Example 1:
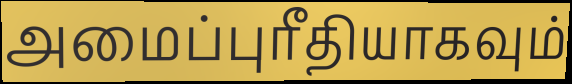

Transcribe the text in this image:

அமைப்புரீதியாகவும்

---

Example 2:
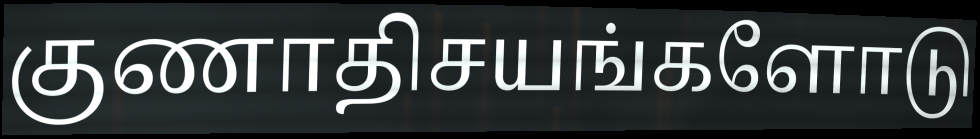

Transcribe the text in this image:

குணாதிசயங்களோடு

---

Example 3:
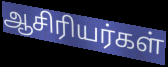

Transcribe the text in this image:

ஆசிரியர்கள்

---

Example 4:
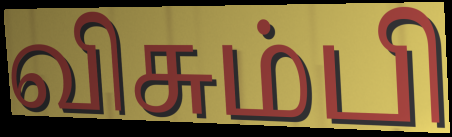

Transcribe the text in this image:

விசும்பி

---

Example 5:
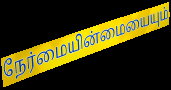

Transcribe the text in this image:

நேர்மையின்மையையும்